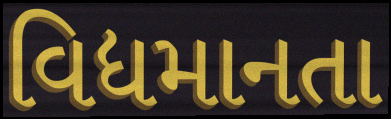
વિદ્યમાનતા